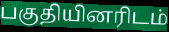
பகுதியினரிடம்